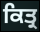
ਕਿਤ੍ਰ